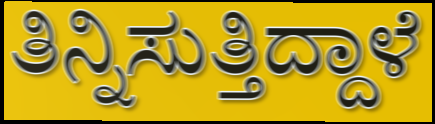
ತಿನ್ನಿಸುತ್ತಿದ್ದಾಳೆ